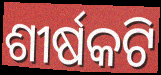
ଶୀର୍ଷକଟି